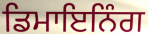
ਡਿਮਾਇਨਿੰਗ